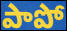
పాపో